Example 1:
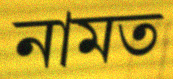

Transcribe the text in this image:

নামত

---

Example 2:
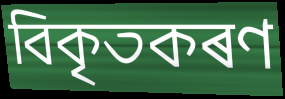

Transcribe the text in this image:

বিকৃতকৰণ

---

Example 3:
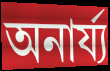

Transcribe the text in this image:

অনাৰ্য্য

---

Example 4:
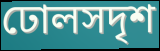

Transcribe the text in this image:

ঢোলসদৃশ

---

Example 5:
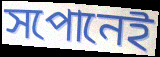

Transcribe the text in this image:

সপোনেই